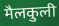
मैलकुली